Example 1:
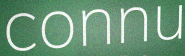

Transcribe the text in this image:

connu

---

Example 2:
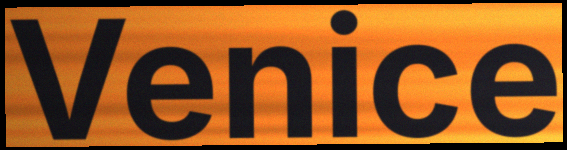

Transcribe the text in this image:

Venice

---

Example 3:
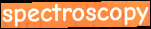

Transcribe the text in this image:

spectroscopy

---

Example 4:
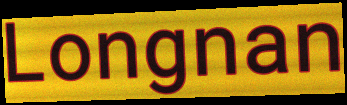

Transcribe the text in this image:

Longnan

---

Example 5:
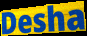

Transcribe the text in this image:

Desha